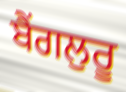
ਬੈਂਗਲੁਰੂ